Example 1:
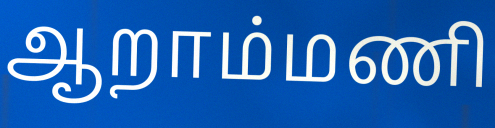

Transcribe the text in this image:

ஆறாம்மணி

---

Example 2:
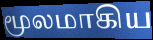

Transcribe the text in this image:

மூலமாகிய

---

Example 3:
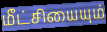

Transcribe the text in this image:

மீட்சியையும்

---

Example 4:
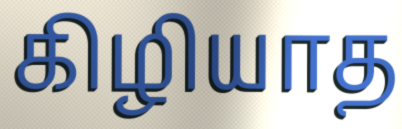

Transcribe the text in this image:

கிழியாத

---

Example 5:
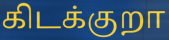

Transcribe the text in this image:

கிடக்குறா